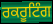
ਰਕਰੂਟਿੰਗ